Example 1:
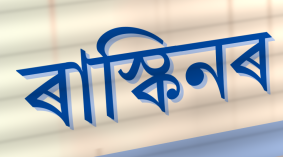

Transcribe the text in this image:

ৰাস্কিনৰ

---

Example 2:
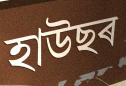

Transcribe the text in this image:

হাউছৰ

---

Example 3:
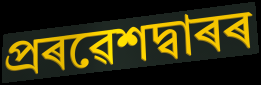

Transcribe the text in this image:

প্ৰৰৱেশদ্বাৰৰ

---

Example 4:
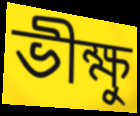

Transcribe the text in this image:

ভীক্ষু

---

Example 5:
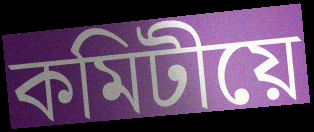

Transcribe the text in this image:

কমিটীয়ে